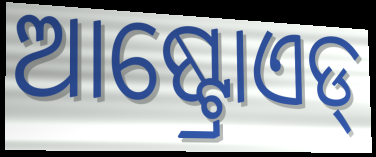
ଆଷ୍ଟ୍ରୋଏଡ୍